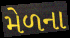
મેળના